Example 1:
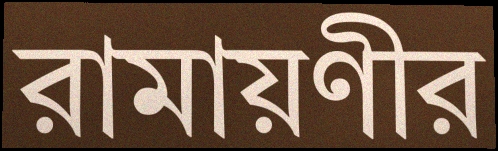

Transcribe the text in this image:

রামায়ণীর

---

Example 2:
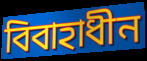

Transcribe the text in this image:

বিবাহাধীন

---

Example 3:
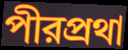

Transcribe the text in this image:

পীরপ্রথা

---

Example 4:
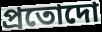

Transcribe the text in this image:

প্রতোদো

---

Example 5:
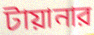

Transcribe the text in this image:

টায়ানার